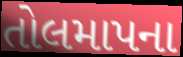
તોલમાપના